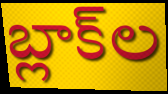
బ్లాక్‌ల